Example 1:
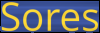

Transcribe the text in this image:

Sores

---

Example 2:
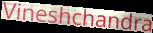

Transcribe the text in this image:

Vineshchandra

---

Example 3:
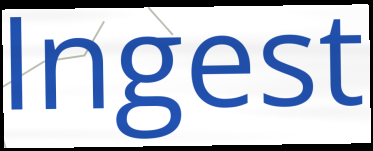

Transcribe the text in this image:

Ingest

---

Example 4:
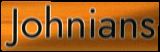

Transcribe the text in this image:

Johnians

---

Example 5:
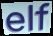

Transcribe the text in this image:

elf